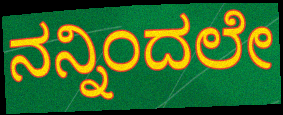
ನನ್ನಿಂದಲೇ